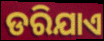
ଡରିଯାଏ